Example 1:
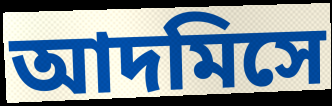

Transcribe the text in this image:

আদমিসে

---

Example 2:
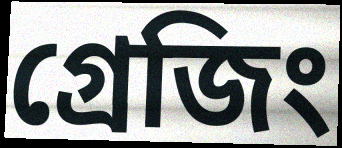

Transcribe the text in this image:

গ্রেজিং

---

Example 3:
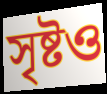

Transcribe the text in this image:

সৃষ্টও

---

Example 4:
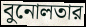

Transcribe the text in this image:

বুনোলতার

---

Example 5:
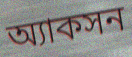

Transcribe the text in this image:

অ্যাকসন